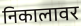
निकालावर